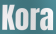
Kora